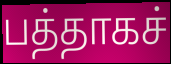
பத்தாகச்